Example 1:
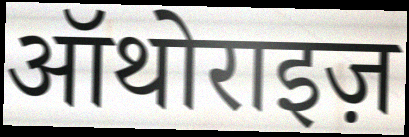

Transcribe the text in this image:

ऑथोराइज़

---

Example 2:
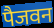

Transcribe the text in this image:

पैजवन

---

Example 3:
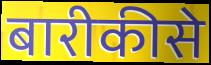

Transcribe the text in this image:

बारीकीसे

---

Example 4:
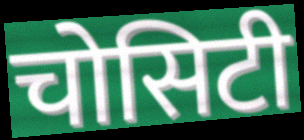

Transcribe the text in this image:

चोसिटी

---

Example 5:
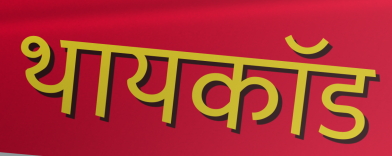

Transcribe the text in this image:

थायकॉड